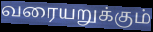
வரையறுக்கும்